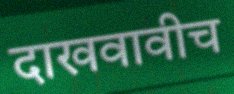
दाखवावीच